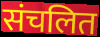
संचलित